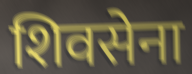
शिवसेना